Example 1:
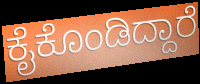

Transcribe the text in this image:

ಕೈಕೊಂಡಿದ್ದಾರೆ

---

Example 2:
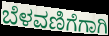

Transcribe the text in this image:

ಬೆಳವಣಿಗೆಗಾಗಿ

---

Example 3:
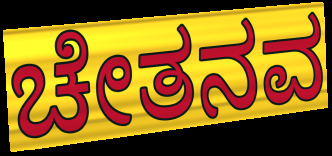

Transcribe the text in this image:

ಚೇತನವ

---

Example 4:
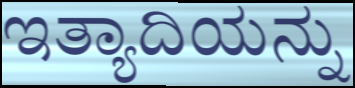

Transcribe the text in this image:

ಇತ್ಯಾದಿಯನ್ನು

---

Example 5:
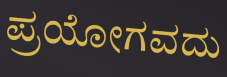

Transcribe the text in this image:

ಪ್ರಯೋಗವದು